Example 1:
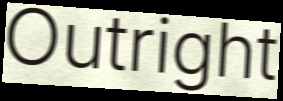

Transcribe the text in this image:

Outright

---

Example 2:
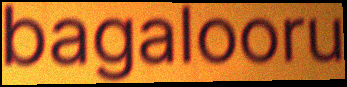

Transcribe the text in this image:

bagalooru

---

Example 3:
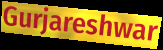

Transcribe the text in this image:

Gurjareshwar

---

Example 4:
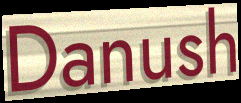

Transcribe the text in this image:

Danush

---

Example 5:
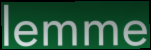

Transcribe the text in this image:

lemme